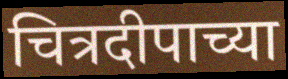
चित्रदीपाच्या